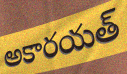
అకారయత్